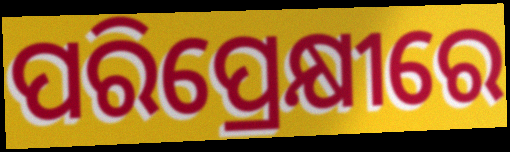
ପରିପ୍ରେକ୍ଷୀରେ